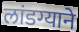
लांडग्याने